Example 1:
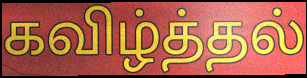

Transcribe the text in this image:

கவிழ்த்தல்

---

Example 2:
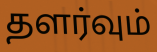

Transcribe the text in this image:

தளர்வும்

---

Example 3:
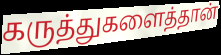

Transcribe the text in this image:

கருத்துகளைத்தான்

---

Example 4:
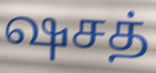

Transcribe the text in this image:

ஷசத்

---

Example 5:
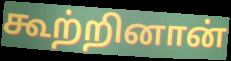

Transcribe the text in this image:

கூற்றினான்